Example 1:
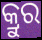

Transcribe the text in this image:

କ୍ରୁର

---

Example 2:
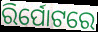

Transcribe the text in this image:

ରିର୍ପୋଟରେ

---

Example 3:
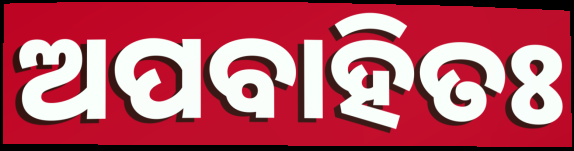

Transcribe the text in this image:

ଅପବାହିତଃ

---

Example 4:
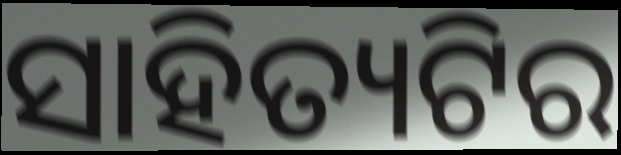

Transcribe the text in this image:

ସାହିତ୍ୟଟିର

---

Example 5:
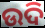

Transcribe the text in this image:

ଉଦି